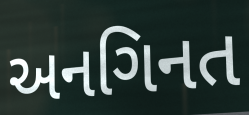
અનગિનત